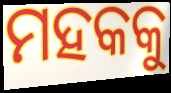
ମହକକୁ